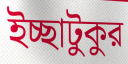
ইচ্ছাটুকুর